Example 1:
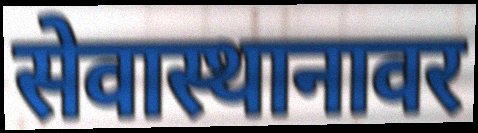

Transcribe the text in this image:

सेवास्थानावर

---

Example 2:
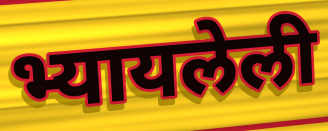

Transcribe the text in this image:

भ्यायलेली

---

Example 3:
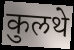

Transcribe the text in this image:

कुलथे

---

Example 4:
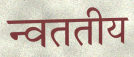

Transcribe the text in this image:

न्वततीय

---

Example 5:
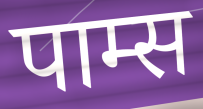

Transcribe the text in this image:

पाम्स